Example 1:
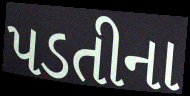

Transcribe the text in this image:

પડતીના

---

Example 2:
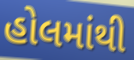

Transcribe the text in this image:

હોલમાંથી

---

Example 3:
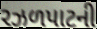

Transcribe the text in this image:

રઝળપાટની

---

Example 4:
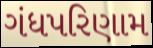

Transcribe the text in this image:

ગંધપરિણામ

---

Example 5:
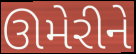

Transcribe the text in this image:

ઊમેરીને